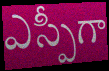
ఎస్పీగా